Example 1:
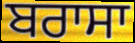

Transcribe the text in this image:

ਬਰਾਸਾ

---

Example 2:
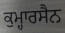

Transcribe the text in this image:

ਕੁਮ੍ਹਾਰਸੈਨ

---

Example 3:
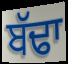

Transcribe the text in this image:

ਬੱਢਾ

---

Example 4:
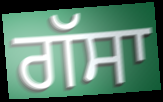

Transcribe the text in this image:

ਗੱਸਾ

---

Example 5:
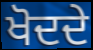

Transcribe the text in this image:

ਖੋਦਦੇ